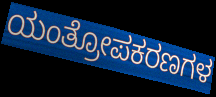
ಯಂತ್ರೋಪಕರಣಗಳ